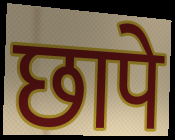
छापे